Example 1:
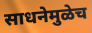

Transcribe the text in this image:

साधनेमुळेच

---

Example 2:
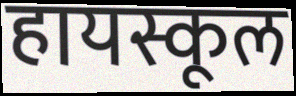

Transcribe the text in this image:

हायस्कूल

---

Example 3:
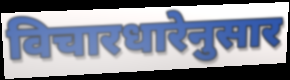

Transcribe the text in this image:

विचारधारेनुसार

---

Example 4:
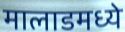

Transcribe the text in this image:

मालाडमध्ये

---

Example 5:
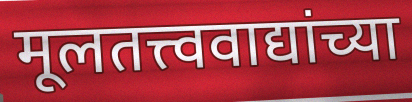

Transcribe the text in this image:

मूलतत्त्ववाद्यांच्या